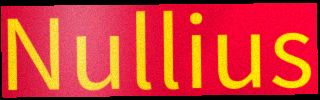
Nullius